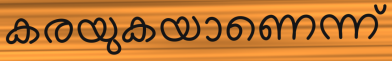
കരയുകയാണെന്ന്